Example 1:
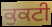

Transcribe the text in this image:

ਕੁਕਟੀ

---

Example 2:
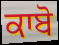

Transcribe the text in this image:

ਕਾਬੋ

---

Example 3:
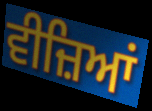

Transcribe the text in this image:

ਵੀਜ਼ਿਆਂ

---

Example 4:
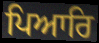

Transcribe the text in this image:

ਪਿਆਰਿ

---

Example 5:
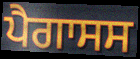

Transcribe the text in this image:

ਪੈਗਾਸਸ